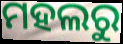
ମହଲରୁ